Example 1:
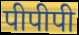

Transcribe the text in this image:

पीपीपी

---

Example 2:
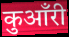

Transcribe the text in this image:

कुआँरी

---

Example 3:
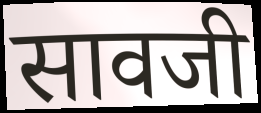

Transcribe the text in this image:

सावजी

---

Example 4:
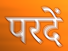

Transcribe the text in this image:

परदें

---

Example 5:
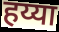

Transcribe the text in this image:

हय्या